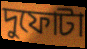
দুফোটা